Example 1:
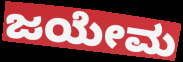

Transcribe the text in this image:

ಜಯೇಮ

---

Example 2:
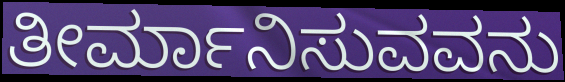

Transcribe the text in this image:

ತೀರ್ಮಾನಿಸುವವನು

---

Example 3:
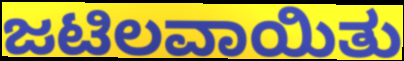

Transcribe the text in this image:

ಜಟಿಲವಾಯಿತು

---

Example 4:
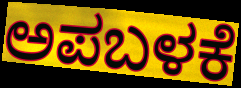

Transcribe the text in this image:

ಅಪಬಳಕೆ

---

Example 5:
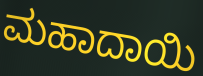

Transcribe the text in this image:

ಮಹಾದಾಯಿ